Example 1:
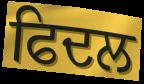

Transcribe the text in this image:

ਫਿਦਲ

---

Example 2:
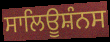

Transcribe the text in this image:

ਸਾਲਿਊਸ਼ੰਨਸ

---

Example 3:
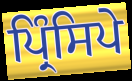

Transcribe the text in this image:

ਪ੍ਰਿੰਸਿਪੇ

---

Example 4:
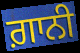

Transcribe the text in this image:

ਗ਼ਾਨੀ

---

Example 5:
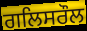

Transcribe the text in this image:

ਗਲਿਸਰੌਲ